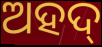
ଅହଦ୍